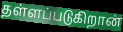
தள்ளப்படுகிறான்